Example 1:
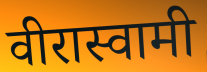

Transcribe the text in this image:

वीरास्वामी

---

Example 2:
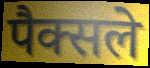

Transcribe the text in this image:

पैक्सले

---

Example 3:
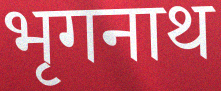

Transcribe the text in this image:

भृगनाथ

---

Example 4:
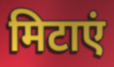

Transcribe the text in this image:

मिटाएं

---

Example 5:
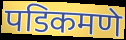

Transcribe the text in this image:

पडिकमणे